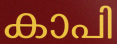
കാപി